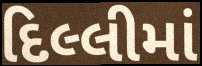
દિલ્લીમાં